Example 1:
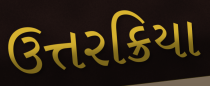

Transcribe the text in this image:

ઉત્તરક્રિયા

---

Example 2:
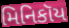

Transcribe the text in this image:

મિનિકૉય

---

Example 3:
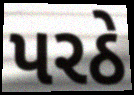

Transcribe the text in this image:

પરઠે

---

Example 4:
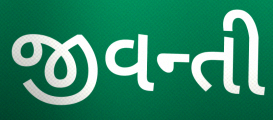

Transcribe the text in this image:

જીવન્તી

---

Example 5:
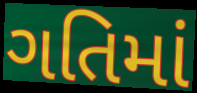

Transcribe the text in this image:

ગતિમાં